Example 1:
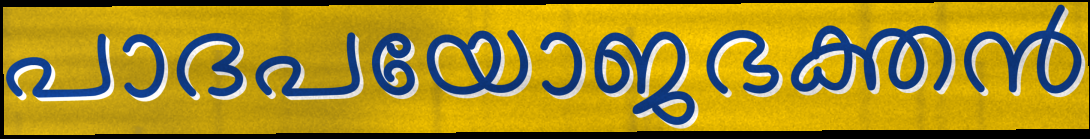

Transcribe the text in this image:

പാദപയോജഭക്തൻ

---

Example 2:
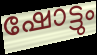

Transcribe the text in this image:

ഷോട്ടും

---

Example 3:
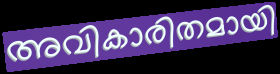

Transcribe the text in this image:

അവികാരിതമായി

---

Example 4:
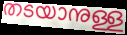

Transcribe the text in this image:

തടയാനുള്ള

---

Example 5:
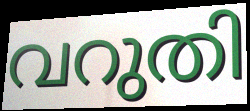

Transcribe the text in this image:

വറുതി